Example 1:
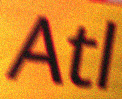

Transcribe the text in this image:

Atl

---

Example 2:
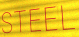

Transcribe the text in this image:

STEEL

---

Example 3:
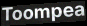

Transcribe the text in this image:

Toompea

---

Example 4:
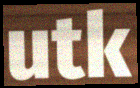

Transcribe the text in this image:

utk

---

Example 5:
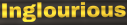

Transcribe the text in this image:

Inglourious